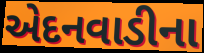
એદનવાડીના